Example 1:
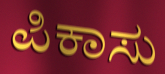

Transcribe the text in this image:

ಪಿಕಾಸು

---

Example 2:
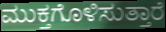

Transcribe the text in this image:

ಮುಕ್ತಗೊಳಿಸುತ್ತಾರೆ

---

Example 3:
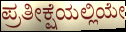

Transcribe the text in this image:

ಪ್ರತೀಕ್ಷೆಯಲ್ಲಿಯೇ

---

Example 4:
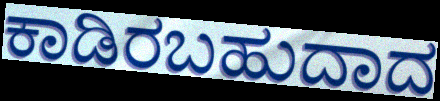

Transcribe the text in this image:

ಕಾಡಿರಬಹುದಾದ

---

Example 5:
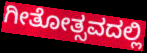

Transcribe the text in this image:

ಗೀತೋತ್ಸವದಲ್ಲಿ